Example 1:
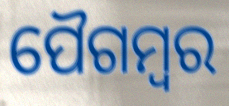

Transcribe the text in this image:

ପୈଗମ୍ବର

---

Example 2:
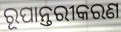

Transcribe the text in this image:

ରୂପାନ୍ତରୀକରଣ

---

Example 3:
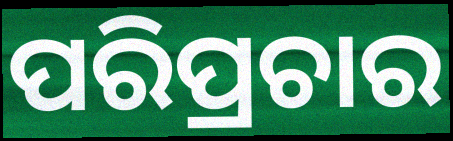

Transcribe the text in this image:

ପରିପ୍ରଚାର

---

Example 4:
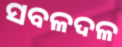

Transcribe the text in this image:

ସବଳଦଳ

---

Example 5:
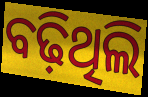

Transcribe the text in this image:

ବଢ଼ିଥିଲି